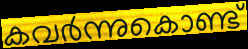
കവർന്നുകൊണ്ട്